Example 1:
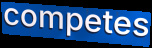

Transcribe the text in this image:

competes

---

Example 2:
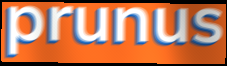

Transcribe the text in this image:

prunus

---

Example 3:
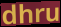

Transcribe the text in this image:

dhru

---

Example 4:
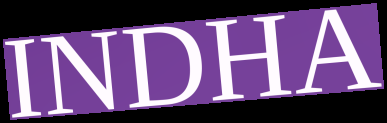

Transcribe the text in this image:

INDHA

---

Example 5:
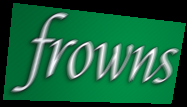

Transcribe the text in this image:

frowns